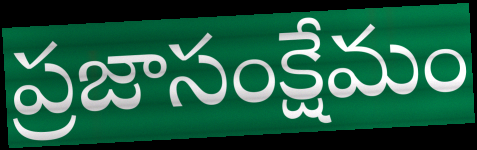
ప్రజాసంక్షేమం